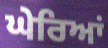
ਘੇਰਿਆਂ